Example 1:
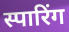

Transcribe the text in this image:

स्पारिंग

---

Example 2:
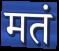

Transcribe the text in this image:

मतं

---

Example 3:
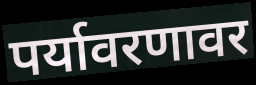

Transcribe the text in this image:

पर्यावरणावर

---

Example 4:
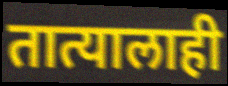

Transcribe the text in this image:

तात्यालाही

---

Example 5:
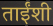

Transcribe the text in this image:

ताईंशी